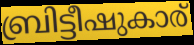
ബ്രിട്ടീഷുകാര്